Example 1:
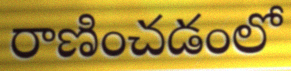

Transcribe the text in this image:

రాణించడంలో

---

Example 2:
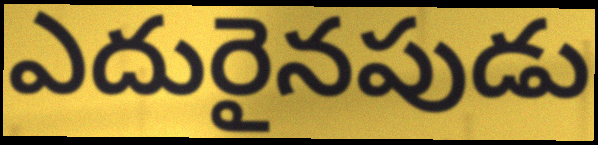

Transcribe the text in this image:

ఎదురైనపుడు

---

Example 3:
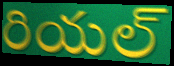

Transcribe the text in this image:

రియల్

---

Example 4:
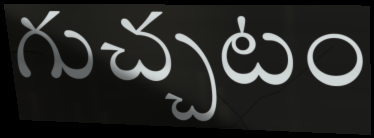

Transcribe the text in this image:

గుచ్చటం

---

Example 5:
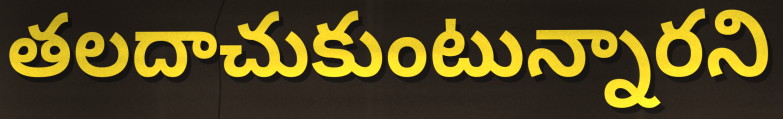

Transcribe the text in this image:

తలదాచుకుంటున్నారని